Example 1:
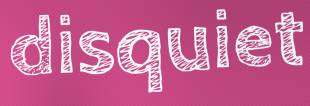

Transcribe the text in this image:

disquiet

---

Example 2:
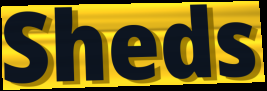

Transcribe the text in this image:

Sheds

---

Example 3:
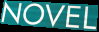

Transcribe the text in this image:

NOVEL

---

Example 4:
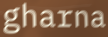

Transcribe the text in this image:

gharna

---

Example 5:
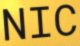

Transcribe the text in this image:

NIC